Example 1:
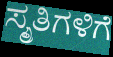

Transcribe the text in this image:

ಸ್ಮೃತಿಗಳಿಗೆ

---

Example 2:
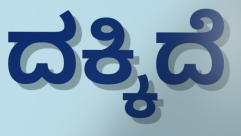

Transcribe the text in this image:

ದಕ್ಕಿದೆ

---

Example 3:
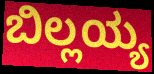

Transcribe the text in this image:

ಬಿಲ್ಲಯ್ಯ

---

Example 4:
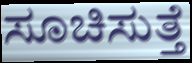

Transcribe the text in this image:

ಸೂಚಿಸುತ್ತೆ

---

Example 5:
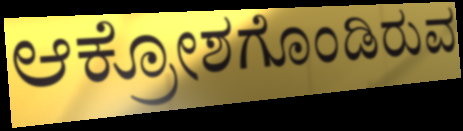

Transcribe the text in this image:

ಆಕ್ರೋಶಗೊಂಡಿರುವ